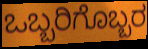
ಒಬ್ಬರಿಗೊಬ್ಬರ